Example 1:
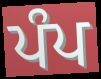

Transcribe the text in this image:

ਪੰਪ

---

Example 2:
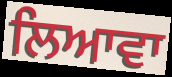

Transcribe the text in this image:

ਲਿਆਵਾ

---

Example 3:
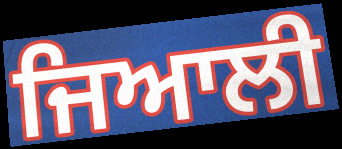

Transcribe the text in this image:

ਜਿਆਲੀ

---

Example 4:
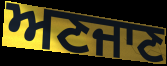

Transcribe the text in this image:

ਅਣਜਾਣ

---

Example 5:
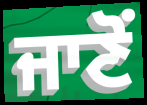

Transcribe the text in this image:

ਜਾਣੋਂ